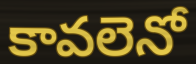
కావలెనో